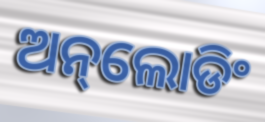
ଅନ୍‌ଲୋଡିଂ